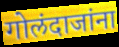
गोलंदाजांना